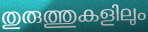
തുരുത്തുകളിലും